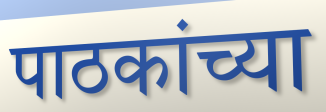
पाठकांच्या